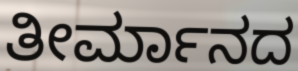
ತೀರ್ಮಾನದ